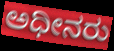
ಅಧೀನರು